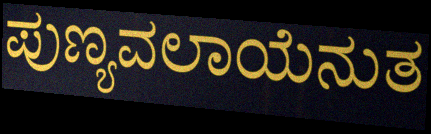
ಪುಣ್ಯವಲಾಯೆನುತ